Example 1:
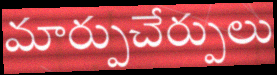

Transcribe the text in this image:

మార్పుచేర్పులు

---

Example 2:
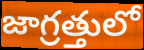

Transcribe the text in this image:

జాగ్రత్తులో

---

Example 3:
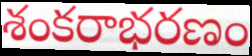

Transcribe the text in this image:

శంకరాభరణం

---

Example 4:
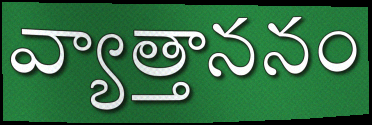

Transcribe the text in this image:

వ్యాత్తాననం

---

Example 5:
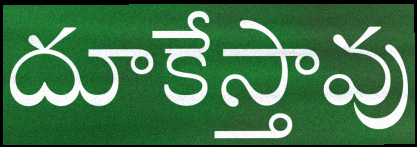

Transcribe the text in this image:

దూకేస్తావు